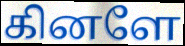
கினளே